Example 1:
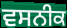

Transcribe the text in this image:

ਵਸਨੀਕ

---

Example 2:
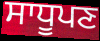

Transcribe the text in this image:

ਸਾਧੂਪਣ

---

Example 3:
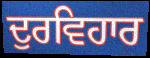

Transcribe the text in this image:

ਦੁਰਵਿਹਾਰ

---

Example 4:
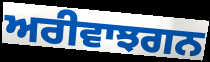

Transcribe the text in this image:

ਅਰੀਵਾਝਗਨ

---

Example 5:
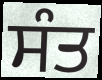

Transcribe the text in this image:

ਸੰਤ